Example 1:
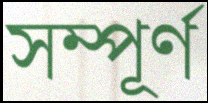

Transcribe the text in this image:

সম্পূর্ণ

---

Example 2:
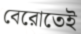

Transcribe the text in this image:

বেরোতেই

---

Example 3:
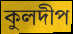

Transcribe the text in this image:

কুলদীপ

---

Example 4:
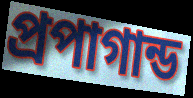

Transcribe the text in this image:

প্রপাগান্ড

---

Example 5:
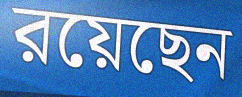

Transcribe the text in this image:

রয়েছেন